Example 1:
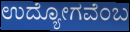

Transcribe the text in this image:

ಉದ್ಯೋಗವೆಂಬ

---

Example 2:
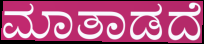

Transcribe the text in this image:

ಮಾತಾಡದೆ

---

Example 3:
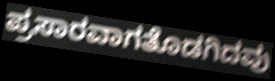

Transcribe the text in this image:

ಪ್ರಸಾರವಾಗತೊಡಗಿದವು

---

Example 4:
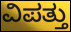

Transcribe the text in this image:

ವಿಪತ್ತು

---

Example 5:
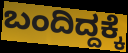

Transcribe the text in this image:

ಬಂದಿದ್ದಕ್ಕೆ